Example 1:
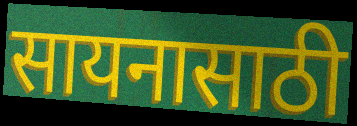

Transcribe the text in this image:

सायनासाठी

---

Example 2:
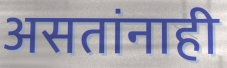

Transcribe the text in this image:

असतांनाही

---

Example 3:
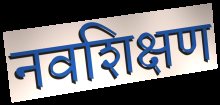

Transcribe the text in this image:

नवशिक्षण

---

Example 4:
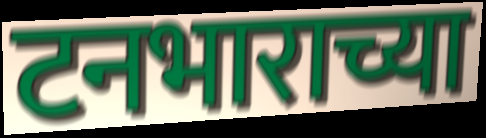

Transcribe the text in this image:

टनभाराच्या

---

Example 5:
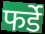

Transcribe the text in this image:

फर्डे